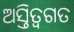
ଅସ୍ତିତ୍ବଗତ